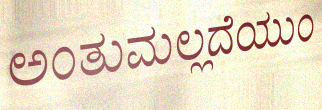
ಅಂತುಮಲ್ಲದೆಯುಂ